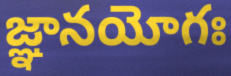
జ్ఞానయోగః